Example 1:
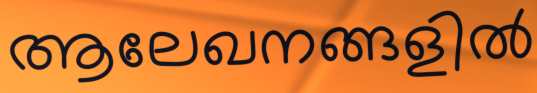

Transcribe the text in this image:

ആലേഖനങ്ങളിൽ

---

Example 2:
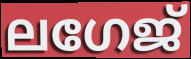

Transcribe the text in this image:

ലഗേജ്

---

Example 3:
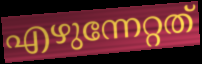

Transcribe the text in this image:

എഴുന്നേറ്റത്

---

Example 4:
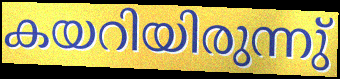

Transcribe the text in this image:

കയറിയിരുന്നു്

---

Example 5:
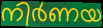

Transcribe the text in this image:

നിർണയ